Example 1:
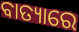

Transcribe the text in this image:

ବାତ୍ୟାରେ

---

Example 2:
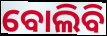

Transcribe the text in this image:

ବୋଲିବି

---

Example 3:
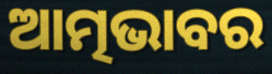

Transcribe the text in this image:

ଆତ୍ମଭାବର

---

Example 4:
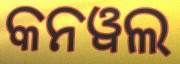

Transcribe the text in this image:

କନୱଲ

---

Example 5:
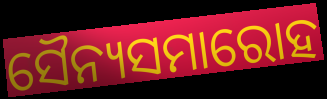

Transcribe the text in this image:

ସୈନ୍ୟସମାରୋହ